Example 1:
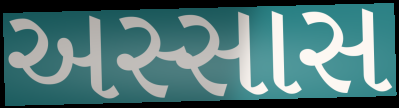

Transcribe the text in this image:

અસ્સાસ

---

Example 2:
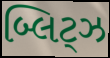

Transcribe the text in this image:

બ્લિટ્ઝ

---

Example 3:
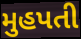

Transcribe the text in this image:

મુહપતી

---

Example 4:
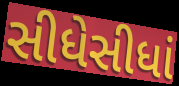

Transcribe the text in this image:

સીધેસીધાં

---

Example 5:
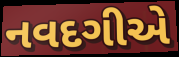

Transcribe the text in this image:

નવદગીએ